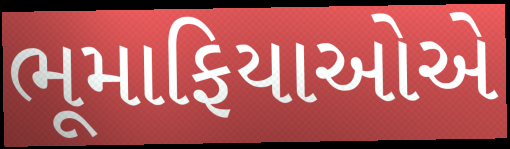
ભૂમાફિયાઓએ